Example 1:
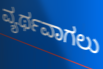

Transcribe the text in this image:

ವ್ಯರ್ಥವಾಗಲು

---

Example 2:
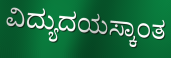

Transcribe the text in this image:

ವಿದ್ಯುದಯಸ್ಕಾಂತ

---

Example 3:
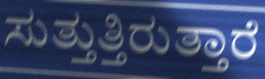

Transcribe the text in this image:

ಸುತ್ತುತ್ತಿರುತ್ತಾರೆ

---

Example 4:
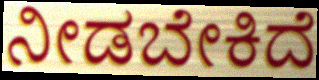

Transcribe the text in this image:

ನೀಡಬೇಕಿದೆ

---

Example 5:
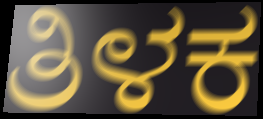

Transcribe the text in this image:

ತಿಳಕ